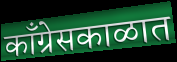
काँग्रेसकाळात